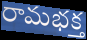
రామభక్త